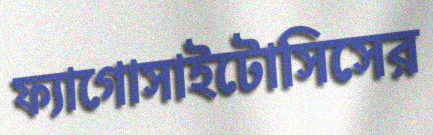
ফ্যাগোসাইটোসিসের